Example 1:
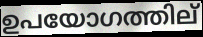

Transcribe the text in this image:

ഉപയോഗത്തില്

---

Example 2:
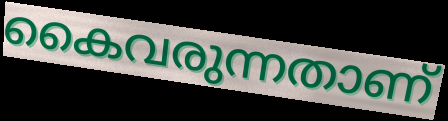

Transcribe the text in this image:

കൈവരുന്നതാണ്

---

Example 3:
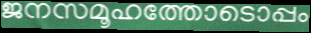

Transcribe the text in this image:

ജനസമൂഹത്തോടൊപ്പം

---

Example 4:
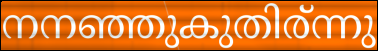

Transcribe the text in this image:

നനഞ്ഞുകുതിര്ന്നു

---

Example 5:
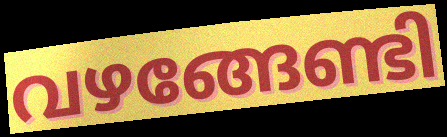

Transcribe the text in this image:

വഴങ്ങേണ്ടി